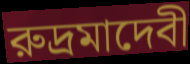
রুদ্রমাদেবী